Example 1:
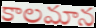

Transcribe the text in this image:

కాలమాన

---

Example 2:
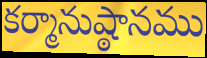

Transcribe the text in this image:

కర్మానుష్ఠానము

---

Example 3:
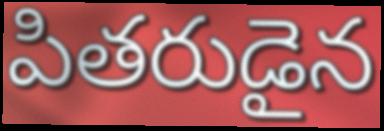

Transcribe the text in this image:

పితరుడైన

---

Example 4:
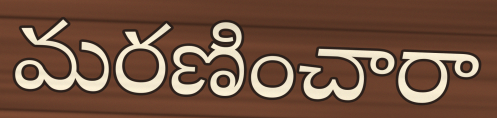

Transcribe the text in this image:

మరణించారా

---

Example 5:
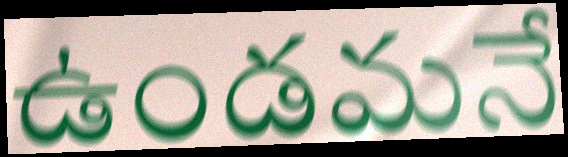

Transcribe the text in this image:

ఉండమనే